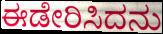
ಈಡೇರಿಸಿದನು